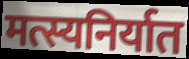
मत्स्यनिर्यात